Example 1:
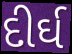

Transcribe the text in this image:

દીર્ઘ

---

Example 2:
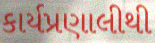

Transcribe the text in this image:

કાર્યપ્રણાલીથી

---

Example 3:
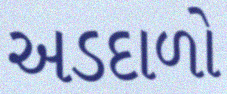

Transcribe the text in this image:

અડદાળો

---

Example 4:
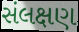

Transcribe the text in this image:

સંલક્ષણ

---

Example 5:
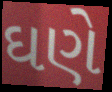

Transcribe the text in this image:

ઘણે